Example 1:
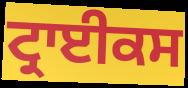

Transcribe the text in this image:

ਟ੍ਰਾਈਕਸ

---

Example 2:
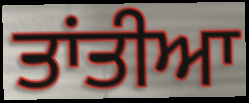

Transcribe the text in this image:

ਤਾਂਤੀਆ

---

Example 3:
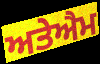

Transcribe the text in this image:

ਅਤੇਐਮ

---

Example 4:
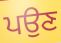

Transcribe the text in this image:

ਪਉਣ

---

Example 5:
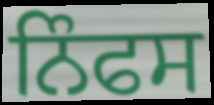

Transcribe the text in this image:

ਨਿੰਫਸ